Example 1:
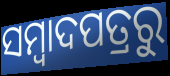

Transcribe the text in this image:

ସମ୍ବାଦପତ୍ରରୁ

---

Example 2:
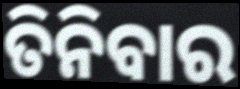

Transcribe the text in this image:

ତିନିବାର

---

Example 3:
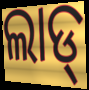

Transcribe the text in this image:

ଲାଡ୍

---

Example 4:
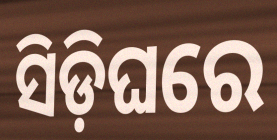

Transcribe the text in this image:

ସିଡ଼ିଘରେ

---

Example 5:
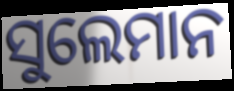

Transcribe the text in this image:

ସୁଲେମାନ